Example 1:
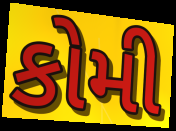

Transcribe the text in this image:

કોમી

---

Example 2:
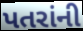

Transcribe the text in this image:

પતરાંની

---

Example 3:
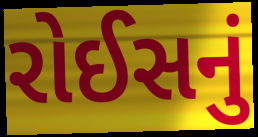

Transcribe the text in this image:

રોઈસનું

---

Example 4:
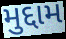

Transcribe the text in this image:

મુદ્દામ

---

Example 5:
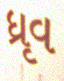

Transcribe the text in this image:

ધ્રૃવ